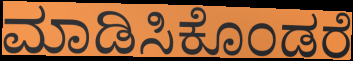
ಮಾಡಿಸಿಕೊಂಡರೆ